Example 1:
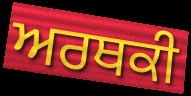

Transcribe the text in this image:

ਅਰਥਕੀ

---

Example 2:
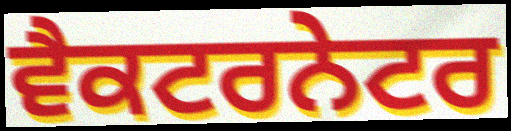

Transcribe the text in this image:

ਵੈਕਟਰਨੇਟਰ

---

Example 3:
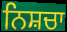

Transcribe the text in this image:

ਨਿਸ਼ਚਾ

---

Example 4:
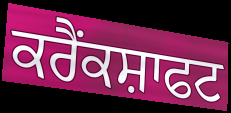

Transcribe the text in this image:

ਕਰੈਂਕਸ਼ਾਫਟ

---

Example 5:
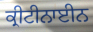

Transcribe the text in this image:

ਕ੍ਰੀਟੀਨਾਈਨ